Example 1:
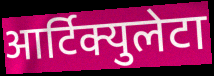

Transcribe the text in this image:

आर्टिक्युलेटा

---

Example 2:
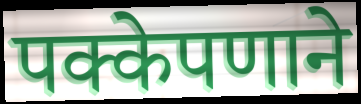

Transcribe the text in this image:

पक्केपणाने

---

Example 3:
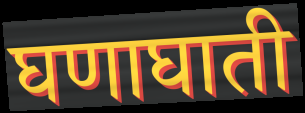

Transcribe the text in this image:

घणाघाती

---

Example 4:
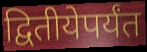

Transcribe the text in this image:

द्वितीयेपर्यंत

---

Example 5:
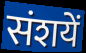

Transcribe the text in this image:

संशयें